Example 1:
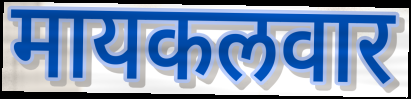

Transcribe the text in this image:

मायकलवार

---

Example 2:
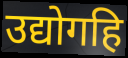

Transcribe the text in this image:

उद्योगहि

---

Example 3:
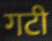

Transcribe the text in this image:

गटी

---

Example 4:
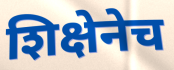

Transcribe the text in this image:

शिक्षेनेच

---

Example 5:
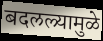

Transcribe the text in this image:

बदलल्यामुळे